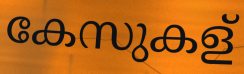
കേസുകള്